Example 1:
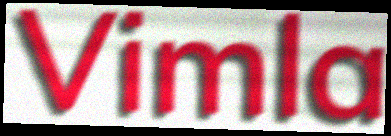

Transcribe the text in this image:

Vimla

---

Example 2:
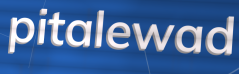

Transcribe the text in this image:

pitalewad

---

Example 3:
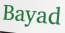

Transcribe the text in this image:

Bayad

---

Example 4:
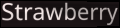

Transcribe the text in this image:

Strawberry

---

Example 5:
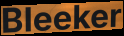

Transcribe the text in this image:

Bleeker